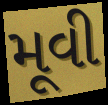
મૂવી